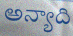
అన్యాది